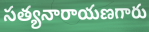
సత్యనారాయణగారు